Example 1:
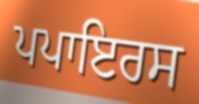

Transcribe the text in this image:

ਪਪਾਇਰਸ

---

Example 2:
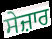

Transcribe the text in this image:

ਸੇਜ਼ਾਰ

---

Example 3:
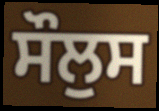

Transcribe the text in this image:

ਸੌਲੁਸ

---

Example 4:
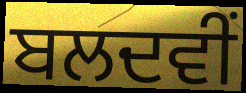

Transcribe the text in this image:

ਬਲਦਵੀਂ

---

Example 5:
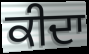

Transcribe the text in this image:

ਕੀਦਾ